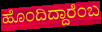
ಹೊಂದಿದ್ದಾರೆಂಬ